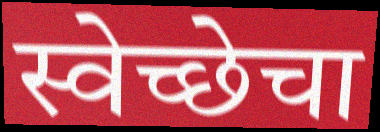
स्वेच्छेचा